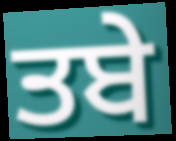
ਤਬੇ